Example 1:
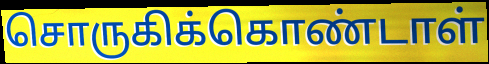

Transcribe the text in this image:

சொருகிக்கொண்டாள்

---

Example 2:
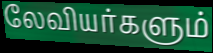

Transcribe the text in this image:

லேவியர்களும்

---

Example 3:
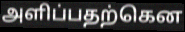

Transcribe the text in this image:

அளிப்பதற்கென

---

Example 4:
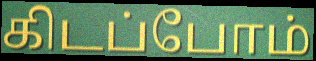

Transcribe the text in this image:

கிடப்போம்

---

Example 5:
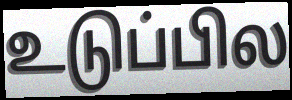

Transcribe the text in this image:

உடுப்பில